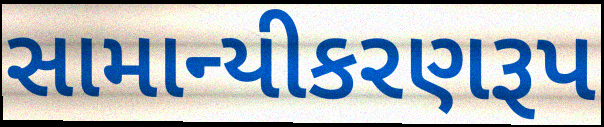
સામાન્યીકરણરૂપ